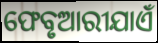
ଫେବୃଆରୀଯାଏଁ